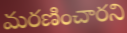
మరణించారని